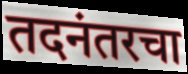
तदनंतरचा